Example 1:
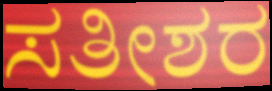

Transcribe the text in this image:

ಸತೀಶರ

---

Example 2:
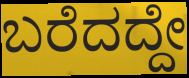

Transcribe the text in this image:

ಬರೆದದ್ದೇ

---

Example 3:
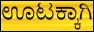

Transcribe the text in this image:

ಊಟಕ್ಕಾಗಿ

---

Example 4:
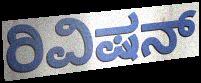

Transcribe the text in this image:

ರಿವಿಷನ್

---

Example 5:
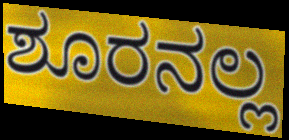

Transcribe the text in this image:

ಶೂರನಲ್ಲ